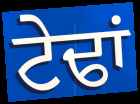
ਟੇਢਾਂ